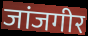
जांजगीर